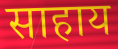
साहाय